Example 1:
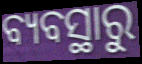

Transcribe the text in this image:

ବ୍ୟବସ୍ଥାରୁ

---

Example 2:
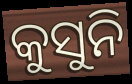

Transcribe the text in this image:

କୁସୁନି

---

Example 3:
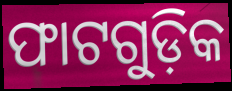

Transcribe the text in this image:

ଫାଟଗୁଡ଼ିକ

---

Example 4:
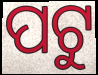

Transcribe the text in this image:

ପଟୁ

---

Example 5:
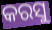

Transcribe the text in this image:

କରସୁ